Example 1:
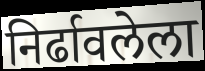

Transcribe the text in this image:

निर्ढावलेला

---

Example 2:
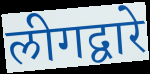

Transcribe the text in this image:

लीगद्वारे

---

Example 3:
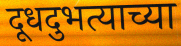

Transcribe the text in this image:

दूधदुभत्याच्या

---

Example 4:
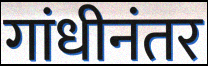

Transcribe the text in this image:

गांधीनंतर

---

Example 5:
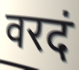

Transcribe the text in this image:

वरदं